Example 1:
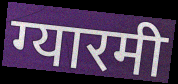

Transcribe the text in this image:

ग्यारमी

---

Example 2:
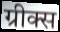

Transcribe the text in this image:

ग्रीक्स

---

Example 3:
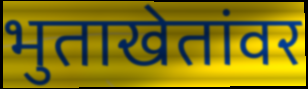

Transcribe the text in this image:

भुताखेतांवर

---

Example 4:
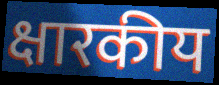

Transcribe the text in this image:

क्षारकीय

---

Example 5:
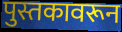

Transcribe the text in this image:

पुस्तकावरून